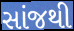
સાંજથી